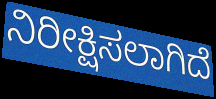
ನಿರೀಕ್ಷಿಸಲಾಗಿದೆ